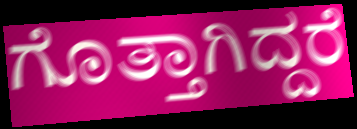
ಗೊತ್ತಾಗಿದ್ದರೆ